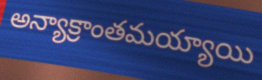
అన్యాక్రాంతమయ్యాయి